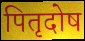
पितृदोष